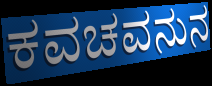
ಕವಚವನುನ